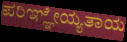
ಪರಿಞ್ಞೇಯ್ಯತಾಯ